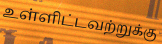
உள்ளிட்டவற்றுக்கு